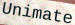
Unimate